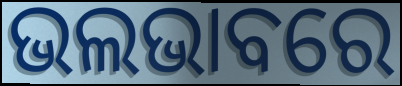
ଭଲଭାବରେ